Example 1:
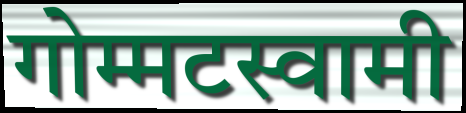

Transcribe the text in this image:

गोम्मटस्वामी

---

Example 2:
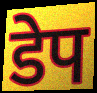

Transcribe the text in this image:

डेप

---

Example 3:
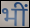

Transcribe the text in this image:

भीं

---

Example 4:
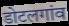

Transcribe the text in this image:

डोटलगांव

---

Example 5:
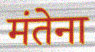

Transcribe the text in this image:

मंतेना